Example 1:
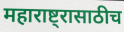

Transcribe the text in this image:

महाराष्ट्रासाठीच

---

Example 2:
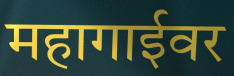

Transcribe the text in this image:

महागाईवर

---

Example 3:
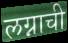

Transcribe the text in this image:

लग्नाची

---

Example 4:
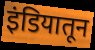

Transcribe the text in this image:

इंडियातून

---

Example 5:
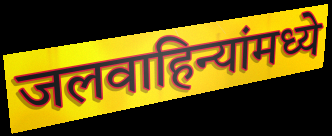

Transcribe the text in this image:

जलवाहिन्यांमध्ये